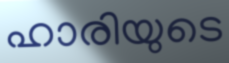
ഹാരിയുടെ